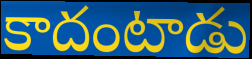
కాదంటాడు